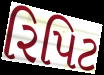
રિપિટ